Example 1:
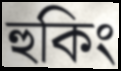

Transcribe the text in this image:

হুকিং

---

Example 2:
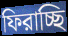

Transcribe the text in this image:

ফিরাচ্ছি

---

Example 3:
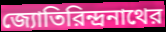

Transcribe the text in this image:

জ্যোতিরিন্দ্রনাথের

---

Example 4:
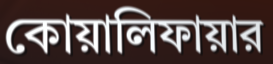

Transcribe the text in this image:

কোয়ালিফায়ার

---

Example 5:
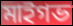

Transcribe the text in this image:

মাইগভ